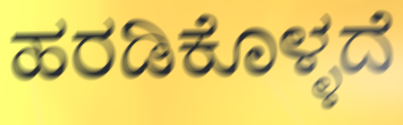
ಹರಡಿಕೊಳ್ಳದೆ